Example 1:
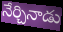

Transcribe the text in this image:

నేర్చినాడు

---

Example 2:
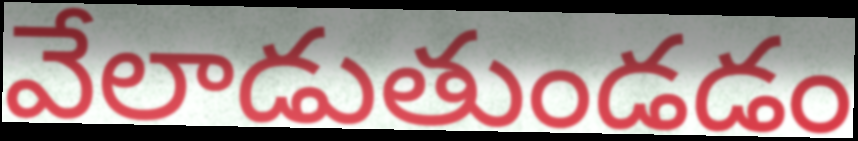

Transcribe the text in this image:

వేలాడుతుండడం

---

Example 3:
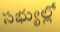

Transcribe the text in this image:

సభ్యుల్లో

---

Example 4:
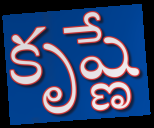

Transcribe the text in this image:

కృష్ణే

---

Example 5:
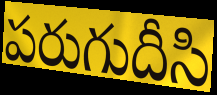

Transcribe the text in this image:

పరుగుదీసి